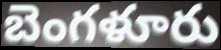
బెంగళూరు